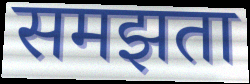
समझता